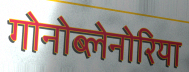
गोनोब्लेनोरिया